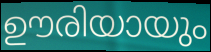
ഊരിയായും